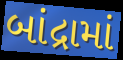
બાંદ્રામાં